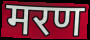
मरण